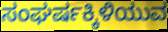
ಸಂಘರ್ಷಕ್ಕಿಳಿಯುವ